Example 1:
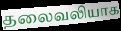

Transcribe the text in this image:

தலைவலியாக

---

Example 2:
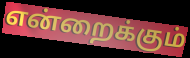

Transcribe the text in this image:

என்றைக்கும்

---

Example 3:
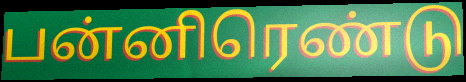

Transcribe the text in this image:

பன்னிரெண்டு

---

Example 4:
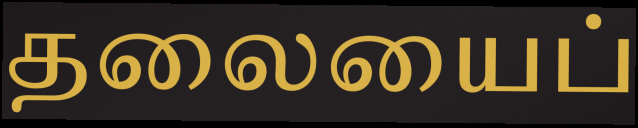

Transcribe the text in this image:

தலையைப்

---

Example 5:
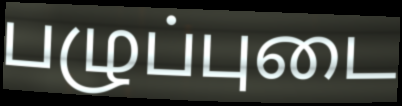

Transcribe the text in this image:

பழுப்புடை